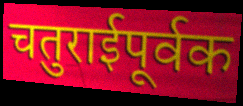
चतुराईपूर्वक